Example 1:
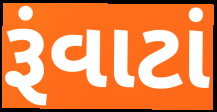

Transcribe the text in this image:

રૂંવાટાં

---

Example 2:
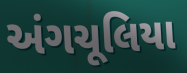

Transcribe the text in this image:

અંગચૂલિયા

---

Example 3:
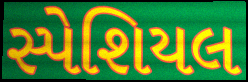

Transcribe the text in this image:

સ્પેશિયલ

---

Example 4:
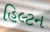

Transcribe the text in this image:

હિલ્ટન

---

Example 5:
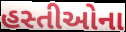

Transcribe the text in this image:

હસ્તીઓના